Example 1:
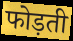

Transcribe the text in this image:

फोड़ती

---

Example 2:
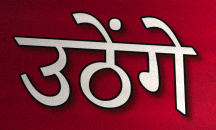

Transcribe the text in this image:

उठेंगे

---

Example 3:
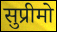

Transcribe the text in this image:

सुप्रीमो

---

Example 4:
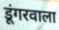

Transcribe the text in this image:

डूंगरवाला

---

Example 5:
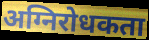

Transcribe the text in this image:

अग्निरोधकता